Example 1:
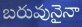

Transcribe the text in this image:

బరువునైనా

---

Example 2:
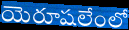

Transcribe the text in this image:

యెరూషలేంలో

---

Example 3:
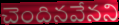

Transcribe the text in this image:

చెందినవేనని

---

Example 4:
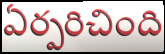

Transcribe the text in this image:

ఏర్పరిచింది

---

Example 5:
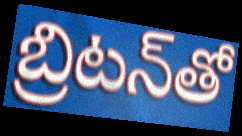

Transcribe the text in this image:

బ్రిటన్‌తో